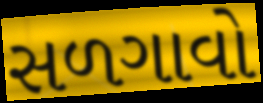
સળગાવો